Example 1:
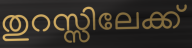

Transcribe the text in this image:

തുറസ്സിലേക്ക്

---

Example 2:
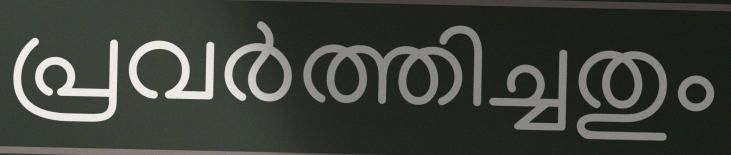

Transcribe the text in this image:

പ്രവർത്തിച്ചതും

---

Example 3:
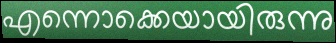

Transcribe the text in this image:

എന്നൊക്കെയായിരുന്നു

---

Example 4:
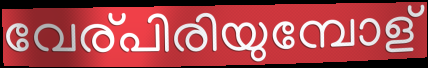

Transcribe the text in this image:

വേര്പിരിയുമ്പോള്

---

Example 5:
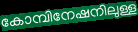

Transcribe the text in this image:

കോമ്പിനേഷനിലുള്ള